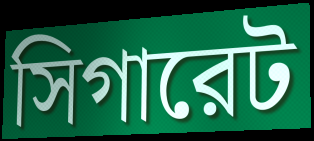
সিগারেট